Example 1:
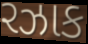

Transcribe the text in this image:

રઝાક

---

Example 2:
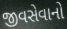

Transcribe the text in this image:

જીવસેવાનો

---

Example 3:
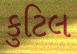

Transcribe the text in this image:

કુટિલ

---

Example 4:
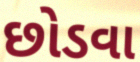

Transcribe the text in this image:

છોડવા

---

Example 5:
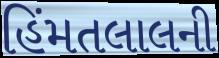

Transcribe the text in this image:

હિંમતલાલની